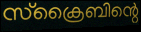
സ്ക്രൈബിന്റെ